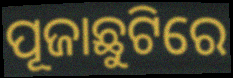
ପୂଜାଛୁଟିରେ